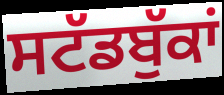
ਸਟੱਡਬੁੱਕਾਂ